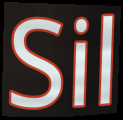
Sil